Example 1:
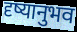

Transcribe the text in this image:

दृष्यानुभव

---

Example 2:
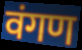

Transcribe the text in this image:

वंगण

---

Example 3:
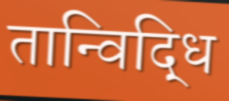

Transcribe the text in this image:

तान्विद्धि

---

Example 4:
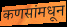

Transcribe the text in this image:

कणसांमधून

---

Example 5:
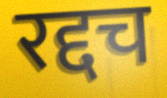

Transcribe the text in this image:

रद्दच